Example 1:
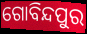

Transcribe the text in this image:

ଗୋବିନ୍ଦପୁର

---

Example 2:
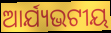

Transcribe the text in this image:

ଆର୍ଯ୍ୟଭଟୀୟ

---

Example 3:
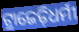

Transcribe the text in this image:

ଟ୍ରାଜେଡ଼ିଧର୍ମୀ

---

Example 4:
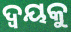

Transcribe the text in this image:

ଦ୍ୱୟକୁ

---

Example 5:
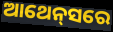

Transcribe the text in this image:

ଆଥେନ୍‍ସରେ